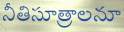
నీతిసూత్రాలనూ